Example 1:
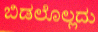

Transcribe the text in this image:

ಬಿಡಲೊಲ್ಲದು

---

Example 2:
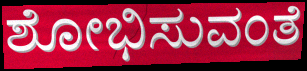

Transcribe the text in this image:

ಶೋಭಿಸುವಂತೆ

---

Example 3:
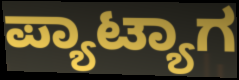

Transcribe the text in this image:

ಪ್ಯಾಟ್ಯಾಗ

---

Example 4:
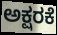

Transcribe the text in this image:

ಅಕ್ಷರಕೆ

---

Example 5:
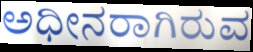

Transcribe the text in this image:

ಅಧೀನರಾಗಿರುವ